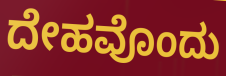
ದೇಹವೊಂದು